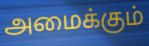
அமைக்கும்